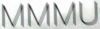
MMMU